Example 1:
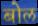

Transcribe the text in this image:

बोल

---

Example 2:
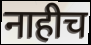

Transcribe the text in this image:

नाहीच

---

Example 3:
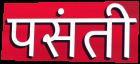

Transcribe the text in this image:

पसंती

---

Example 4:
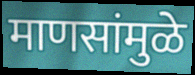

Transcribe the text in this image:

माणसांमुळे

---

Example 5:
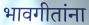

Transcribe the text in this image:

भावगीतांना